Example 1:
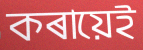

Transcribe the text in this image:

কৰায়েই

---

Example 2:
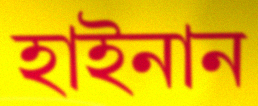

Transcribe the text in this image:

হাইনান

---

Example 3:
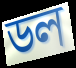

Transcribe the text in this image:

ডল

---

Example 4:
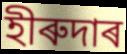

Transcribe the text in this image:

হীৰুদাৰ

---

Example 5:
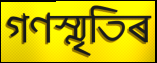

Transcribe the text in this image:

গণস্মৃতিৰ